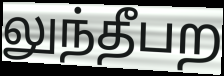
லுந்தீபற